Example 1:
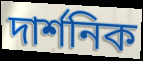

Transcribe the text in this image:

দাৰ্শনিক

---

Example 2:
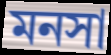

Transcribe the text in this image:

মনসা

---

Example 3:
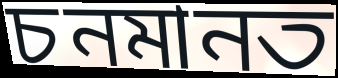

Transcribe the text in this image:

চনমানত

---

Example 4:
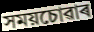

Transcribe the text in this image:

সময়চোৱাৰ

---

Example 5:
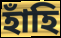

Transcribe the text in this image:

হাঁহি